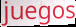
juegos